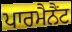
ਪਾਰਮੈਨੈਂਟ